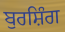
ਬੁਰਸ਼ਿੰਗ